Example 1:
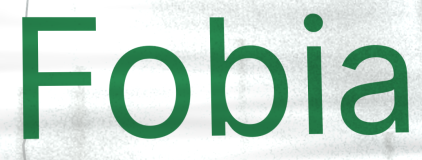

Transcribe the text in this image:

Fobia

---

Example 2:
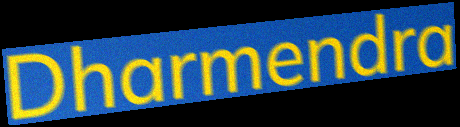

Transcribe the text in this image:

Dharmendra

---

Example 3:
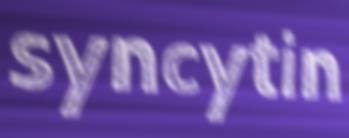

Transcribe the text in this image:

syncytin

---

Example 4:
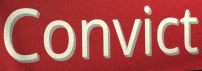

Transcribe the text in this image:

Convict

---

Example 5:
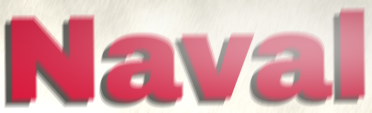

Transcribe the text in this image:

Naval